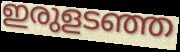
ഇരുളടഞ്ഞ